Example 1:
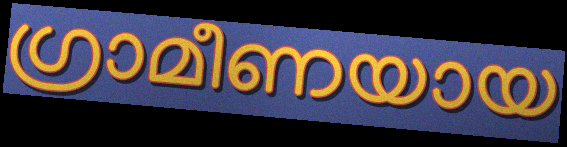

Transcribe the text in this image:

ഗ്രാമീണയായ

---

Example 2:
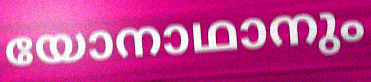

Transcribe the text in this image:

യോനാഥാനും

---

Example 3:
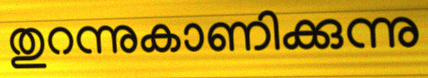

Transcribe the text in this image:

തുറന്നുകാണിക്കുന്നു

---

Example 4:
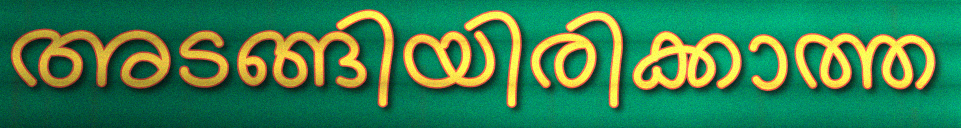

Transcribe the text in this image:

അടങ്ങിയിരിക്കാത്ത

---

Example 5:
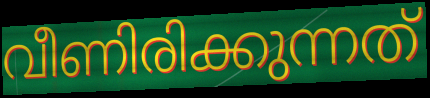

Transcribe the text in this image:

വീണിരിക്കുന്നത്